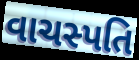
વાચસ્પતિ